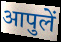
आपुलें